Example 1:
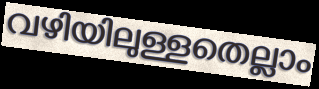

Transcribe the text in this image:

വഴിയിലുള്ളതെല്ലാം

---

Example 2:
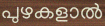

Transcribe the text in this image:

പുഴകളാൽ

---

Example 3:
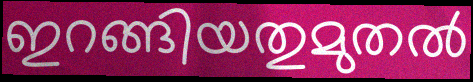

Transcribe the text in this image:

ഇറങ്ങിയതുമുതൽ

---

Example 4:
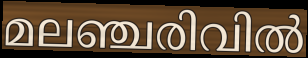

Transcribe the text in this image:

മലഞ്ചരിവിൽ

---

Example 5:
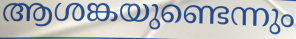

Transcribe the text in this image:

ആശങ്കയുണ്ടെന്നും